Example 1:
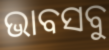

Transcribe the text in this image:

ଭାବସବୁ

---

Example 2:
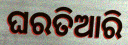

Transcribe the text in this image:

ଘରତିଆରି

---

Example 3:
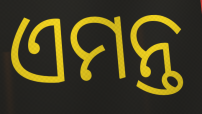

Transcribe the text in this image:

ଏମନ୍ତ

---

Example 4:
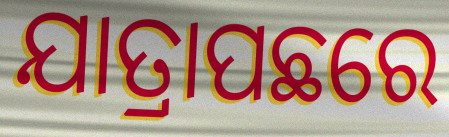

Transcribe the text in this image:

ଯାତ୍ରାପଛରେ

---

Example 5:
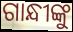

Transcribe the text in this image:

ଗାନ୍ଧୀଙ୍କୁ